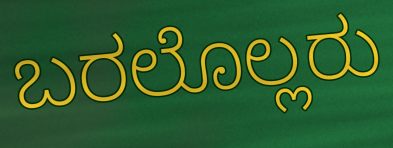
ಬರಲೊಲ್ಲರು